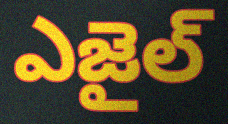
ఎజైల్